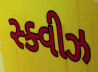
સ્ક્વીઝ